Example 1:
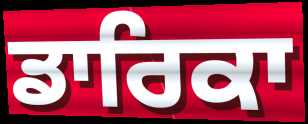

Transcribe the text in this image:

ਡਾਰਿਕਾ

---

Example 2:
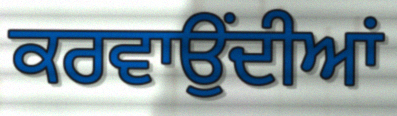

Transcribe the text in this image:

ਕਰਵਾਉਂਦੀਆਂ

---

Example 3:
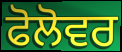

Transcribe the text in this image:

ਫੋਲੋਵਰ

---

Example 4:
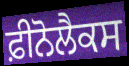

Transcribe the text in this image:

ਫ਼ੀਨੋਲੈਕਸ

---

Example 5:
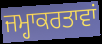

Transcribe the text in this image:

ਜਮ੍ਹਾਕਰਤਾਵਾਂ